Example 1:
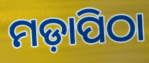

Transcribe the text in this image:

ମଡ଼ାପିଠା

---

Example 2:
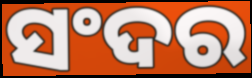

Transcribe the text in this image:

ସଂଦର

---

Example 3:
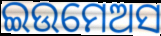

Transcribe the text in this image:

ଇଉମେଅସ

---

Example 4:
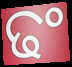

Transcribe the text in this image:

ଢଂ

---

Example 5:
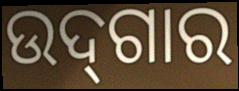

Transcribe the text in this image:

ଉଦ୍‌ଗାର